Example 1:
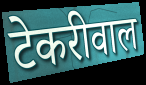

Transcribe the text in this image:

टेकरीवाल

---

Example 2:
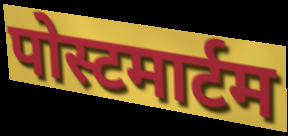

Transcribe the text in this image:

पोस्टमार्टम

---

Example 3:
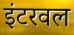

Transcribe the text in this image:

इंटरवल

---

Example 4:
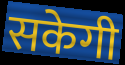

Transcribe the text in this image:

सकेगी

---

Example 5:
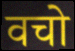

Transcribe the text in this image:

वचो